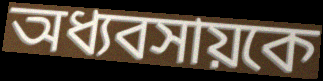
অধ্যবসায়কে